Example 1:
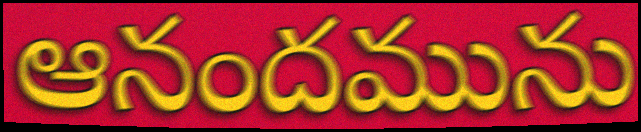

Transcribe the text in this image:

ఆనందమును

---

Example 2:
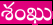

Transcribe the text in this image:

శంఖు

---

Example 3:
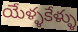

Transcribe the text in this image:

యేళ్ళకేళ్ళు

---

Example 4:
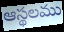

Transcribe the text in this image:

ఆస్థలము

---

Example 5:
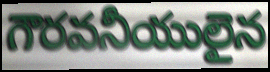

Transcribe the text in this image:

గౌరవనీయులైన